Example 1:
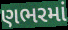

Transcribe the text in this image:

ણભરમાં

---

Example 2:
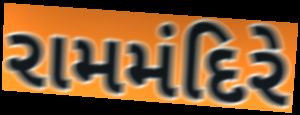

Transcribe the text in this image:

રામમંદિરે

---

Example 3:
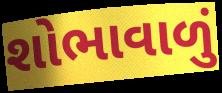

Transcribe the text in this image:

શોભાવાળું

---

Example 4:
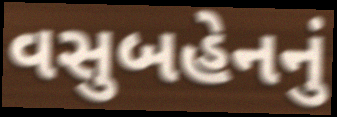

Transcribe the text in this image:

વસુબહેનનું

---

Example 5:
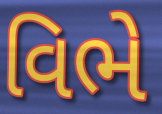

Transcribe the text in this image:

વિભે